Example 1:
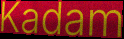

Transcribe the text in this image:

Kadam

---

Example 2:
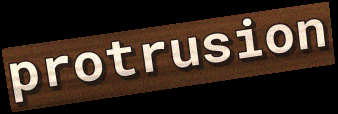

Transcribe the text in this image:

protrusion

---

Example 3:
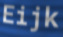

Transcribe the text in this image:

Eijk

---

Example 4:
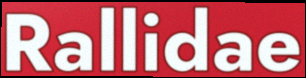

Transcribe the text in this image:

Rallidae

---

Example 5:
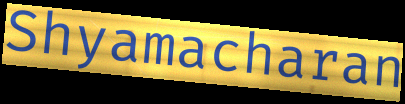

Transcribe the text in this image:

Shyamacharan